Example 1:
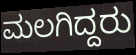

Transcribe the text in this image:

ಮಲಗಿದ್ದರು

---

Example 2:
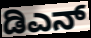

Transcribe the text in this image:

ಡಿಎನ್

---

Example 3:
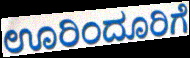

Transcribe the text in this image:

ಊರಿಂದೂರಿಗೆ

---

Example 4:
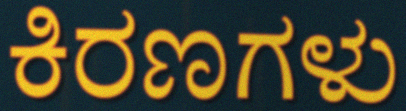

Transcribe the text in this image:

ಕಿರಣಗಳು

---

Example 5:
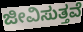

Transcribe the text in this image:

ಜೀವಿಸುತ್ತವೆ